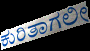
ಕುರಿತಾಗಲೀ